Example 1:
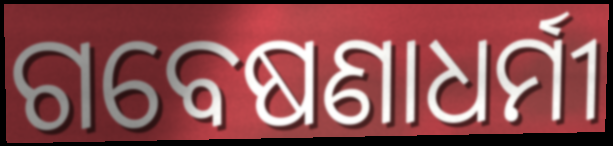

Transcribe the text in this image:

ଗବେଷଣାଧର୍ମୀ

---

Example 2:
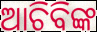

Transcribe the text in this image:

ଆଚିବିଙ୍କ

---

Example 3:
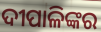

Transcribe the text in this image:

ଦୀପାଳିଙ୍କର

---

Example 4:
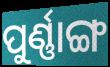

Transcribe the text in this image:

ପୁର୍ଣ୍ଣାଙ୍ଗ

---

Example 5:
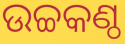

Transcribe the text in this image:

ଉଚ୍ଚକଣ୍ଠ